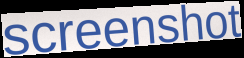
screenshot